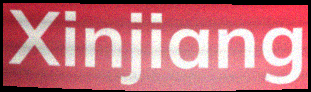
Xinjiang